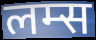
लम्स